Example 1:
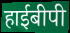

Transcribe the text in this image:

हाईबीपी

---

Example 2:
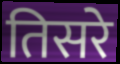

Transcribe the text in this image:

तिसरे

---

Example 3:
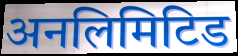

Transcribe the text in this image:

अनलिमिटिड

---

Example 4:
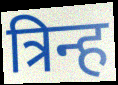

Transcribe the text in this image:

त्रिन्ह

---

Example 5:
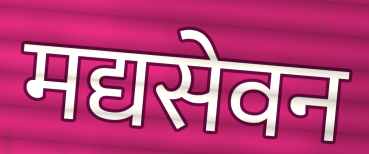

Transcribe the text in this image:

मद्यसेवन